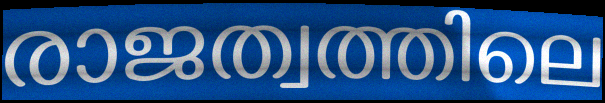
രാജത്വത്തിലെ